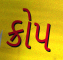
ક્રોપ